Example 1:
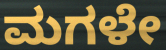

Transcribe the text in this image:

ಮಗಳೇ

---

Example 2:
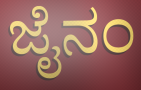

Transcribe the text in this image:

ಜೈನಂ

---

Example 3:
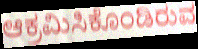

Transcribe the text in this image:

ಆಕ್ರಮಿಸಿಕೊಂಡಿರುವ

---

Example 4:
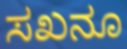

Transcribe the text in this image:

ಸಖನೂ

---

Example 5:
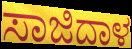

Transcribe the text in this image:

ಸಾಜಿದಾಳ